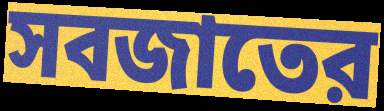
সবজাতের